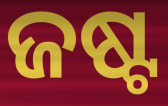
ଜଷ୍ଟ